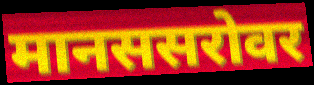
मानससरोवर